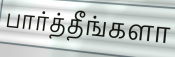
பார்த்தீங்களா